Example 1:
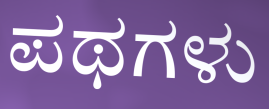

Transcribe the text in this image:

ಪಥಗಳು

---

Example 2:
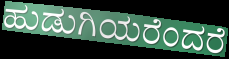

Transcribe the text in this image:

ಹುಡುಗಿಯರೆಂದರೆ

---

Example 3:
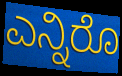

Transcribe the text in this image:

ಎನ್ನಿರೊ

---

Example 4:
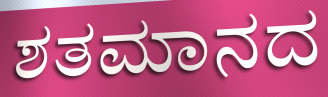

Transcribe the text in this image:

ಶತಮಾನದ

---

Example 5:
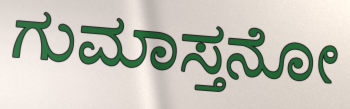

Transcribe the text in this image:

ಗುಮಾಸ್ತನೋ